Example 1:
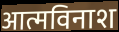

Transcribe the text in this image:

आत्मविनाश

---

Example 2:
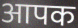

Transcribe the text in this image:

आपक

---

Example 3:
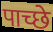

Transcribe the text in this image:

पाच्छे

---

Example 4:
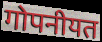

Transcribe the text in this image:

गोपनीयत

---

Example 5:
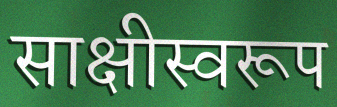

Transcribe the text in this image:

साक्षीस्वरूप